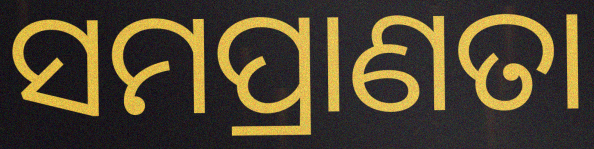
ସମପ୍ରାଣତା